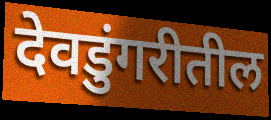
देवडुंगरीतील